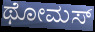
ಥೋಮಸ್